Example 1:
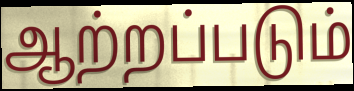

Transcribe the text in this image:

ஆற்றப்படும்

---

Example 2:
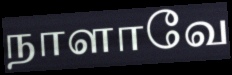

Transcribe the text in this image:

நாளாவே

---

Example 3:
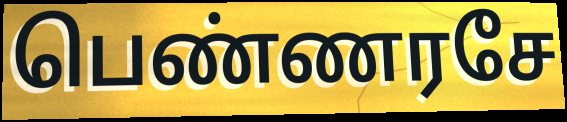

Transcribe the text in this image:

பெண்ணரசே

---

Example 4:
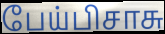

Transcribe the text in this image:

பேய்பிசாசு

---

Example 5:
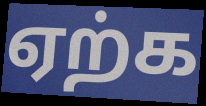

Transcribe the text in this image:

ஏற்க